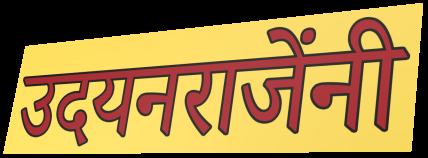
उदयनराजेंनी